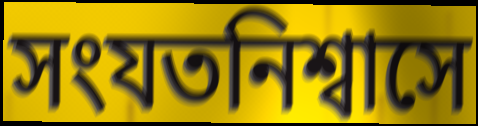
সংযতনিশ্বাসে